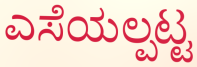
ಎಸೆಯಲ್ಪಟ್ಟ